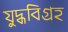
যুদ্ধবিগ্রহ